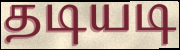
தடியடி